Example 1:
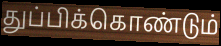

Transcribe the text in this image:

துப்பிக்கொண்டும்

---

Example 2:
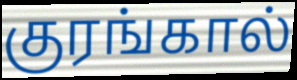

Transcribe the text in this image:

குரங்கால்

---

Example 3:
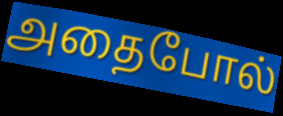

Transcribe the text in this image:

அதைபோல்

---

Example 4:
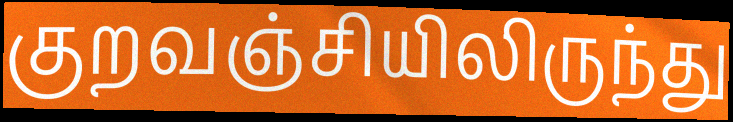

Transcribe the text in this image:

குறவஞ்சியிலிருந்து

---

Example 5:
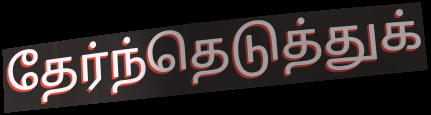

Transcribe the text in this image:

தேர்ந்தெடுத்துக்